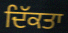
ਦਿੱਕਤਾ